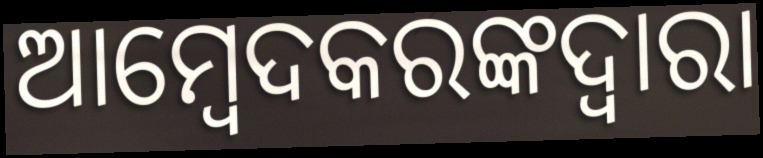
ଆମ୍ବେଦକରଙ୍କଦ୍ୱାରା